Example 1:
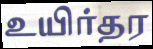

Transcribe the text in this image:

உயிர்தர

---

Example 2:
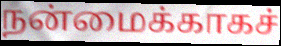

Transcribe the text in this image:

நன்மைக்காகச்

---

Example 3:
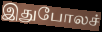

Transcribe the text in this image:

இதுபோலச்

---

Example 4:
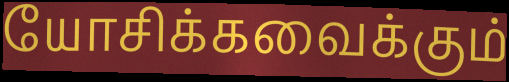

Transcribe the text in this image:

யோசிக்கவைக்கும்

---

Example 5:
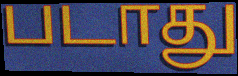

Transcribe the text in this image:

படாது